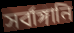
সর্বাঙ্গানি